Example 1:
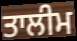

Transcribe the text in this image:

ਤਾਲੀਮ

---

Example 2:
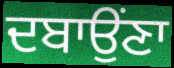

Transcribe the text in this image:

ਦਬਾਉਂਣਾ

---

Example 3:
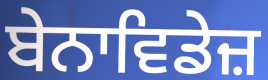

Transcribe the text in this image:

ਬੇਨਾਵਿਡੇਜ਼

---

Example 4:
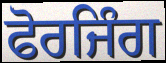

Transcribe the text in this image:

ਫੋਰਜਿੰਗ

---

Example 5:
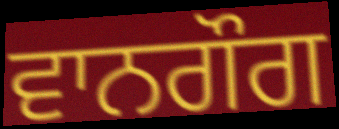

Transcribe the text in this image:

ਵਾਨਗੌਗ